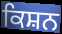
ਕਿਸ਼ਨ